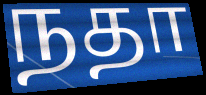
நதா